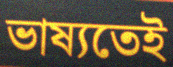
ভাষ্যতেই